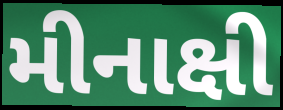
મીનાક્ષી